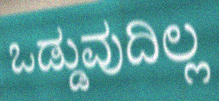
ಒಡ್ಡುವುದಿಲ್ಲ